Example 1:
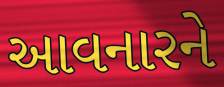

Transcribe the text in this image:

આવનારને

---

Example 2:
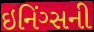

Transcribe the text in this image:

ઇનિંગ્સની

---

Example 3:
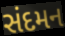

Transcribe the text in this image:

સંદમન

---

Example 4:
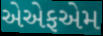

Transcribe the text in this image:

એએફએમ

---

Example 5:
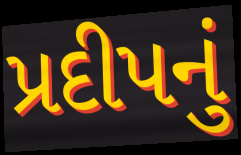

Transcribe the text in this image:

પ્રદીપનું